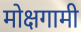
मोक्षगामी